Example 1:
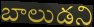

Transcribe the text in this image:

బాలుడని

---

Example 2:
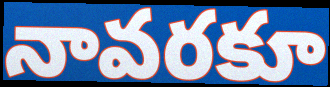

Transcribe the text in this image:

నావరకూ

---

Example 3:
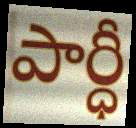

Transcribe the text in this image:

పార్ధీ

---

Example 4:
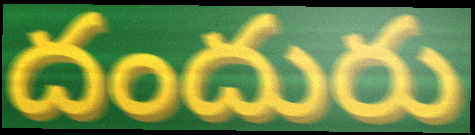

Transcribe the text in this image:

దందురు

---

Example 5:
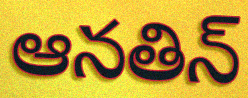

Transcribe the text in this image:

ఆనతిన్